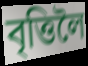
বৃত্তিলৈ